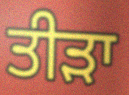
ਤੀੜਾ